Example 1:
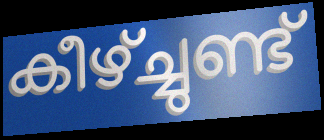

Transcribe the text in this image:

കീഴ്ച്ചുണ്ട്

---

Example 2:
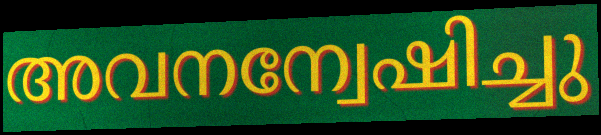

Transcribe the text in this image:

അവനന്വേഷിച്ചു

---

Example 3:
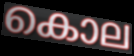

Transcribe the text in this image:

കൊല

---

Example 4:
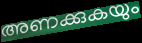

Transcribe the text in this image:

അണക്കുകയും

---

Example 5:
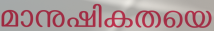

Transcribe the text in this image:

മാനുഷികതയെ